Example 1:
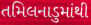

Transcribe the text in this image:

તમિલનાડુમાંથી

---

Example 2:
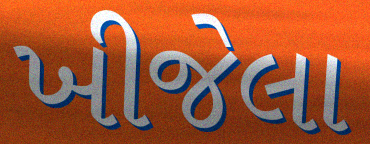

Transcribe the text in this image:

ખીજેલા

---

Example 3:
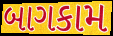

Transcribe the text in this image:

બાગકામ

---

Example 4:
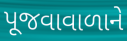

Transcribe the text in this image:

પૂજવાવાળાને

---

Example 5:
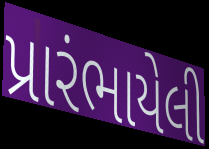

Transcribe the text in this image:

પ્રારંભાયેલી